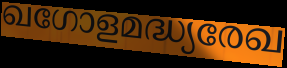
ഖഗോളമദ്ധ്യരേഖ